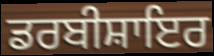
ਡਰਬੀਸ਼ਾਇਰ